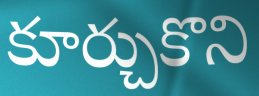
కూర్చుకొని